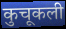
कुचूकली